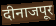
दीनाजपूर